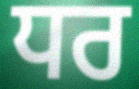
ਧਰ